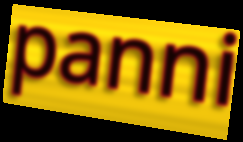
panni